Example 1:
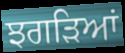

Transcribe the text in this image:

ਝਗੜਿਆਂ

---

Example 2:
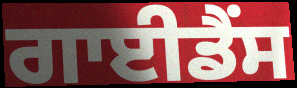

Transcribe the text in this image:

ਗਾਈਡੈਂਸ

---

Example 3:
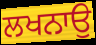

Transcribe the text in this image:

ਲਖਨਾਉ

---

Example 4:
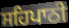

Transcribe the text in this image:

ਸਹਿਪਾਠੀ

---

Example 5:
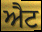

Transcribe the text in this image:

ਐਟ